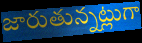
జారుతున్నట్లుగా